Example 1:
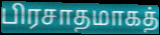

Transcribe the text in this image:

பிரசாதமாகத்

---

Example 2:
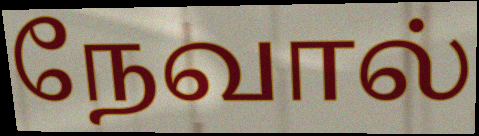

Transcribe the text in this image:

நேவால்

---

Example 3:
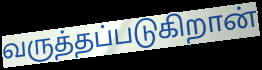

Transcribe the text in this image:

வருத்தப்படுகிறான்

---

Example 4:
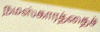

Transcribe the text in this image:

நமஸ்காரத்தைச்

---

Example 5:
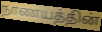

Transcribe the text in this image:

நாணயத்தின்